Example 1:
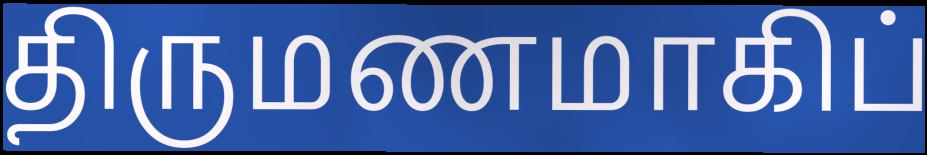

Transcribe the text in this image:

திருமணமாகிப்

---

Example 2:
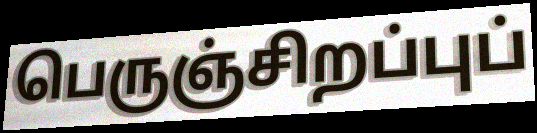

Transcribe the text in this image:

பெருஞ்சிறப்புப்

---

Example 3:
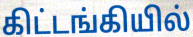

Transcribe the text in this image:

கிட்டங்கியில்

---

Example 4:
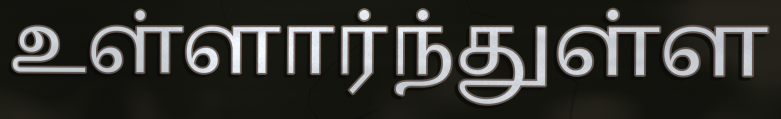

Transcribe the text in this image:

உள்ளார்ந்துள்ள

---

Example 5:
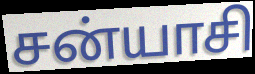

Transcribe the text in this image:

சன்யாசி